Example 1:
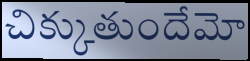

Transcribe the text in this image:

చిక్కుతుందేమో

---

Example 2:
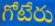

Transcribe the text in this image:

గోటేరు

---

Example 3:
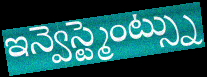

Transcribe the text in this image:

ఇన్వెస్ట్మెంట్స్ను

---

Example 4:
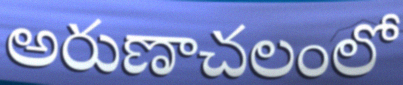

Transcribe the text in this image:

అరుణాచలంలో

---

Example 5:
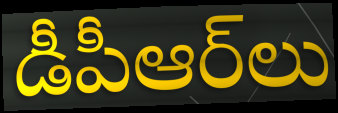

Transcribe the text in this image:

డీపీఆర్‌లు